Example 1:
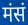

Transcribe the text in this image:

मंसं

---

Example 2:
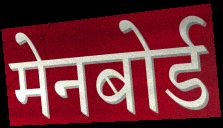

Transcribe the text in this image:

मेनबोर्ड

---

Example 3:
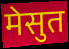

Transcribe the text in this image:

मेसुत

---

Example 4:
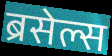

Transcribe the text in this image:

ब्रसेल्स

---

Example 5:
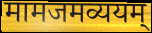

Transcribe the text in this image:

मामजमव्ययम्